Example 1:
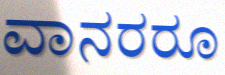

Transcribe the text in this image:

ವಾನರರೂ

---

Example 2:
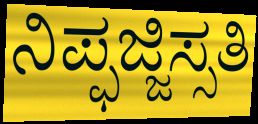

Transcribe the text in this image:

ನಿಪ್ಫಜ್ಜಿಸ್ಸತಿ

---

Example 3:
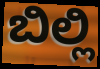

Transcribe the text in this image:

ಬಿಲ್ಲಿ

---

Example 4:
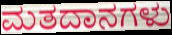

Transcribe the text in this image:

ಮತದಾನಗಳು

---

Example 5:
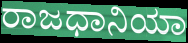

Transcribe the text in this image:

ರಾಜಧಾನಿಯಾ